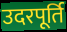
उदरपूर्ति